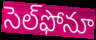
సెల్‌ఫోనూ